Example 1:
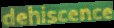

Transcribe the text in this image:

dehiscence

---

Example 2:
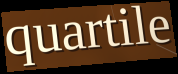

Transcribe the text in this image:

quartile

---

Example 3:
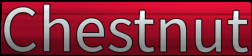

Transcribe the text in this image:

Chestnut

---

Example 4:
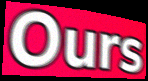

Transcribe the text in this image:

Ours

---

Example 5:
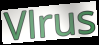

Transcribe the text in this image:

VIrus